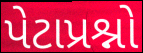
પેટાપ્રશ્નો